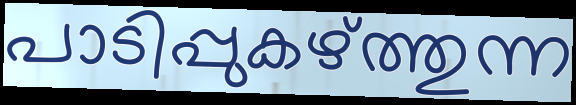
പാടിപ്പുകഴ്ത്തുന്ന